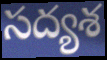
సద్యశ